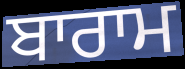
ਬਾਰਾਮ